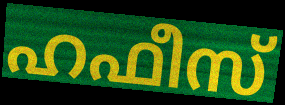
ഹഫീസ്